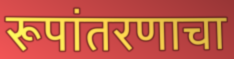
रूपांतरणाचा